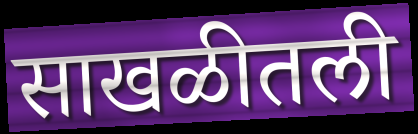
साखळीतली